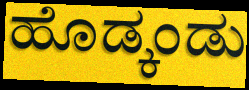
ಹೊಡ್ಕಂಡು